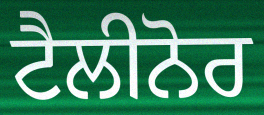
ਟੈਲੀਨੋਰ